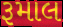
રૂમાલ